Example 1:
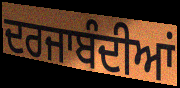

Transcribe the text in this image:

ਦਰਜਾਬੰਦੀਆਂ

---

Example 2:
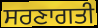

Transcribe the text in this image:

ਸਰਣਾਗਤੀ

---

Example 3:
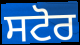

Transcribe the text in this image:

ਸਟੋਰ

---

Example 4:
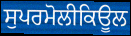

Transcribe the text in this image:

ਸੁਪਰਮੋਲੀਕਿਊਲ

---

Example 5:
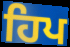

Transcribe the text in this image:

ਹਿਪ